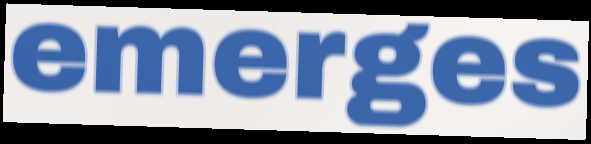
emerges